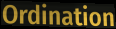
Ordination